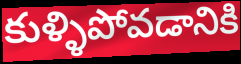
కుళ్ళిపోవడానికి